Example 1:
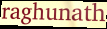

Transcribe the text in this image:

raghunath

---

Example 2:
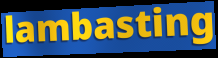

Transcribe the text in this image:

lambasting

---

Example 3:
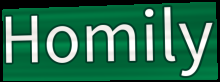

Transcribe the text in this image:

Homily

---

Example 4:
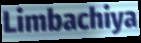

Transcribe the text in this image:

Limbachiya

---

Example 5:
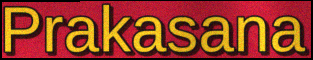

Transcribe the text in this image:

Prakasana